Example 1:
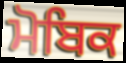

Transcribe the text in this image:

ਮੋਬਿਕ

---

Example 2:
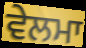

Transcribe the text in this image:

ਵੇਲਮਾ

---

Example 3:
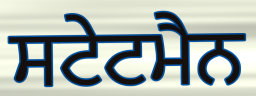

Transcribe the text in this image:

ਸਟੇਟਮੈਨ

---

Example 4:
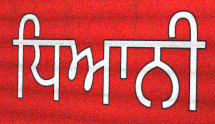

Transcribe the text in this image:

ਧਿਆਨੀ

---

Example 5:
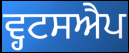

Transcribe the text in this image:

ਵ੍ਹਟਸਐਪ